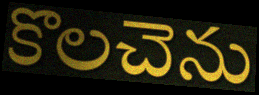
కొలచెను